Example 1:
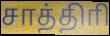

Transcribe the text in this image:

சாத்திரி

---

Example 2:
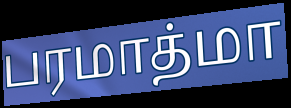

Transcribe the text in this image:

பரமாத்மா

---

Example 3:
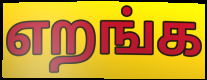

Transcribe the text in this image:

எறங்க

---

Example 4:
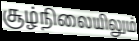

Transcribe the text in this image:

சூழ்நிலையிலும்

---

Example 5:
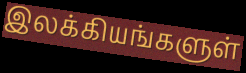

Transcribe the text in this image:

இலக்கியங்களுள்